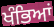
ਖੰਭਿਆਂ